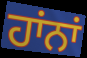
ਹਾਂਨਾਂ